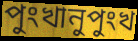
পুংখানুপুংখ